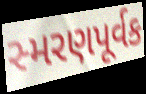
સ્મરણપૂર્વક